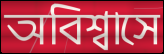
অবিশ্বাসে